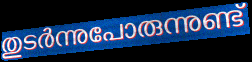
തുടർന്നുപോരുന്നുണ്ട്